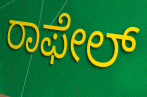
ರಾಫೇಲ್